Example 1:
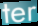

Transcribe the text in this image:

ter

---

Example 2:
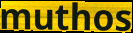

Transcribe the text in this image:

muthos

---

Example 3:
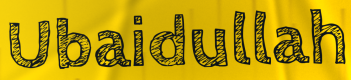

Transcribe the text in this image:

Ubaidullah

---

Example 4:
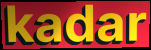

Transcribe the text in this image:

kadar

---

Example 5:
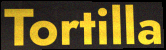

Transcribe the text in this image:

Tortilla